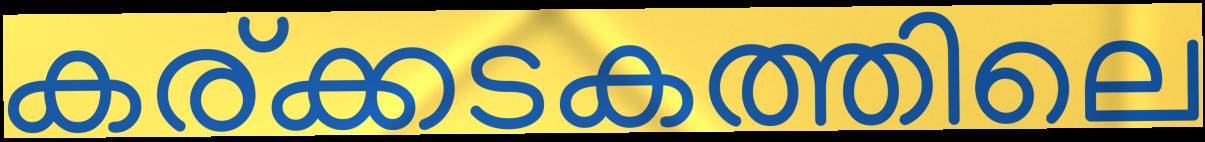
കര്ക്കടകത്തിലെ